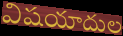
విషయాదుల